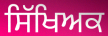
ਸਿੱਖਿਅਕ